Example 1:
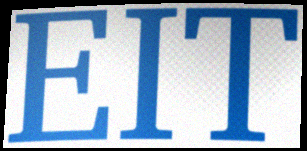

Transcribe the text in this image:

EIT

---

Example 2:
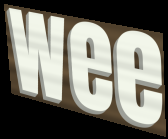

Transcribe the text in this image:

wee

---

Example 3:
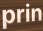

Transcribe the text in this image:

prin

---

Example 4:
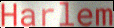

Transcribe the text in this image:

Harlem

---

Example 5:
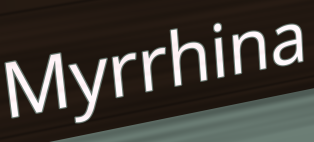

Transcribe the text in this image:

Myrrhina